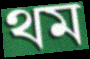
থম